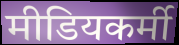
मीडियकर्मी